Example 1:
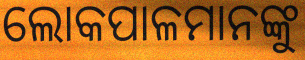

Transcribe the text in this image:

ଲୋକପାଳମାନଙ୍କୁ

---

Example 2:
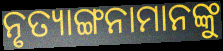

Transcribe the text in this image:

ନୃତ୍ୟାଙ୍ଗନାମାନଙ୍କୁ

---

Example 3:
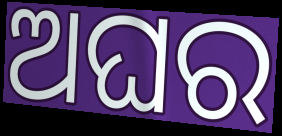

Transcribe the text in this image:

ଅଘର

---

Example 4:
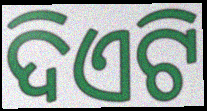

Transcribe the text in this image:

ଦିଏଟି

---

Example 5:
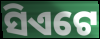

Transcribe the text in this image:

ସିଏଟେ